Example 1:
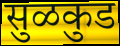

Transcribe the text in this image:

सुळकुड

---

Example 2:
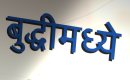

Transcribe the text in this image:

बुद्धीमध्ये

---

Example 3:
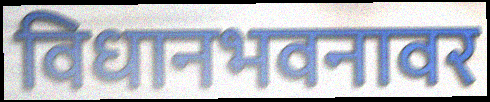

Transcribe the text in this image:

विधानभवनावर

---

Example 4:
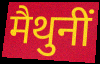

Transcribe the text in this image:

मैथुनीं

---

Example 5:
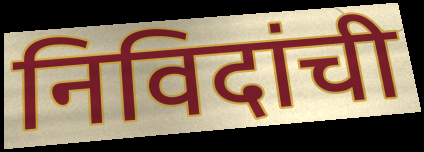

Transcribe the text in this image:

निविदांची